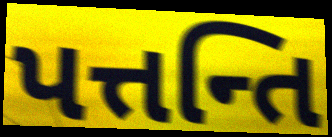
પત્તન્તિ